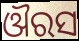
ଔରସ